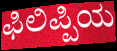
ಫಿಲಿಪ್ಪಿಯ